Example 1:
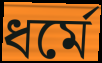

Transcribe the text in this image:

ধর্মে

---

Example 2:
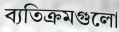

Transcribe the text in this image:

ব্যতিক্রমগুলো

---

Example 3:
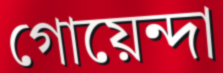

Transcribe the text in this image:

গোয়েন্দা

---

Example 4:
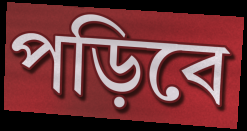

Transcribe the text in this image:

পড়িবে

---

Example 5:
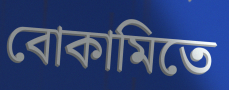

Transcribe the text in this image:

বোকামিতে